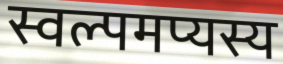
स्वल्पमप्यस्य